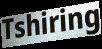
Tshiring